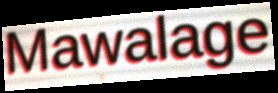
Mawalage